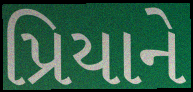
પ્રિયાને